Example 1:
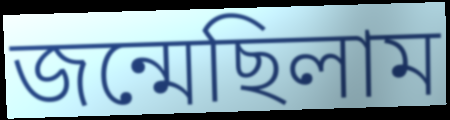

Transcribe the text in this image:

জন্মেছিলাম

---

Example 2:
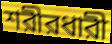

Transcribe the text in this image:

শরীরধারী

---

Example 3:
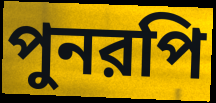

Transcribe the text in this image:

পুনরপি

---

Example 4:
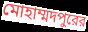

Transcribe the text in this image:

মোহাম্মদপুরের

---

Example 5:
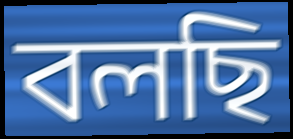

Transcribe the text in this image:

বলছি